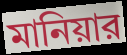
মানিয়ার